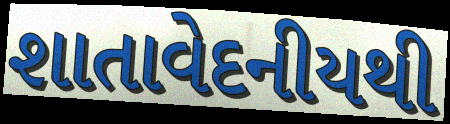
શાતાવેદનીયથી